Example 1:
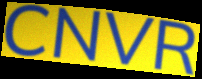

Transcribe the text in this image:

CNVR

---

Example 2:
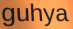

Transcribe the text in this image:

guhya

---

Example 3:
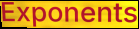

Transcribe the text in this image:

Exponents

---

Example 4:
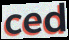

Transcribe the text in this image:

ced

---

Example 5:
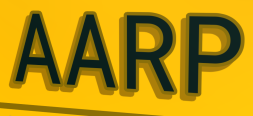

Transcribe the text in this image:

AARP